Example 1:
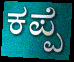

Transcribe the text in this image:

ಕಪ್ಪೆ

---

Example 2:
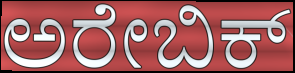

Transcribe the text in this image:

ಅರೇಬಿಕ್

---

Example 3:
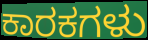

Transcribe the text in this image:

ಕಾರಕಗಳು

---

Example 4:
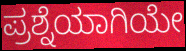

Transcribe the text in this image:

ಪ್ರಶ್ನೆಯಾಗಿಯೇ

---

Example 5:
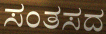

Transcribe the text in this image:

ಸಂತಸದ